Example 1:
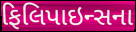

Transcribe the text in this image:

ફિલિપાઇન્સના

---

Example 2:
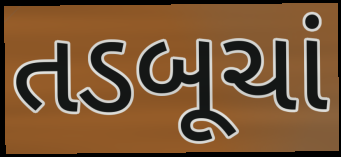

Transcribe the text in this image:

તડબૂચાં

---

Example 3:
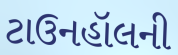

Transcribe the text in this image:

ટાઉનહૉલની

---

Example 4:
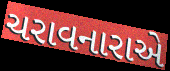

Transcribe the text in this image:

ચરાવનારાએ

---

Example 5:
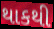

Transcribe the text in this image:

થાકથી